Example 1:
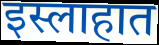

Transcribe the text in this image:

इस्लाहात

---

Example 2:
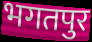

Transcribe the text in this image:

भगतपुर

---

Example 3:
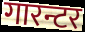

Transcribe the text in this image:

गारन्टर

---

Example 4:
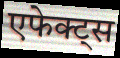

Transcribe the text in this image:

एफेक्ट्स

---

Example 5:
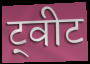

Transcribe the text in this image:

ट्‌वीट